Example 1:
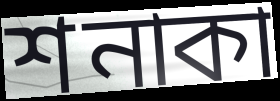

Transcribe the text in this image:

শনাকা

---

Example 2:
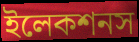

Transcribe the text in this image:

ইলেকশনস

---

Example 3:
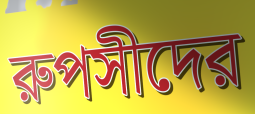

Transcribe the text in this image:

রুপসীদের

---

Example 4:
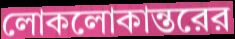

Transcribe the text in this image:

লোকলোকান্তরের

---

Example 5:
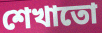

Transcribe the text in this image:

শেখাতো